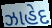
ઝાહેદ